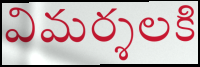
విమర్శలకి